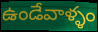
ఉండేవాళ్ళం